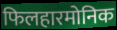
फिलहारमोनिक